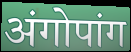
अंगोपांग